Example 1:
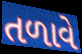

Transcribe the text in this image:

તળાવે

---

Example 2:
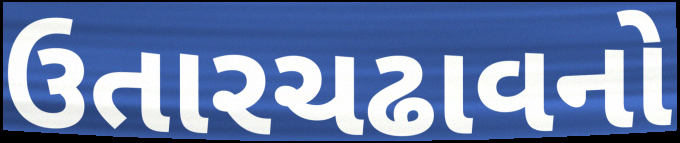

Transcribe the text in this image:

ઉતારચઢાવનો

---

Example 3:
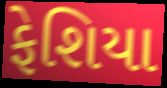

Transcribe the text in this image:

ફેશિયા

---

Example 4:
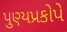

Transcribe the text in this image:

પુણ્યપ્રકોપે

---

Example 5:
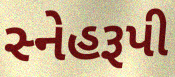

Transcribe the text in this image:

સ્નેહરૂપી